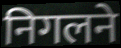
निगलने